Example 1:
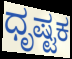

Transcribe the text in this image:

ಧೃಷ್ಟಕ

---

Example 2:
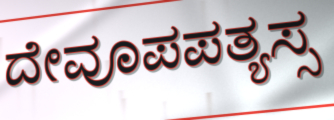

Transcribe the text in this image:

ದೇವೂಪಪತ್ಯಸ್ಸ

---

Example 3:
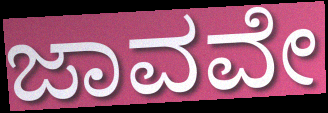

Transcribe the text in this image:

ಜಾವವೇ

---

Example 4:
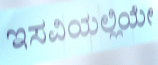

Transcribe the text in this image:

ಇಸವಿಯಲ್ಲಿಯೇ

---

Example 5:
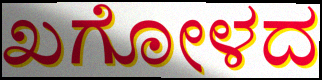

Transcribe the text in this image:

ಖಗೋಳದ